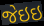
જેઇઇ